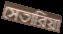
সেতারিয়া